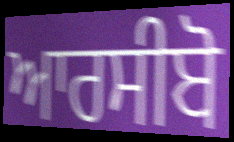
ਆਰਸੀਬੋ